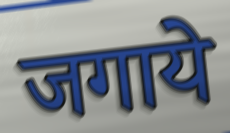
जगाये